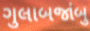
ગુલાબજાંબુ